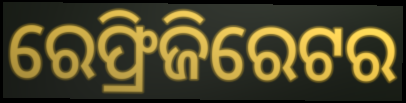
ରେଫ୍ରିଜିରେଟର